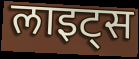
लाइट्स